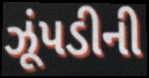
ઝૂંપડીની